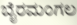
ಬೈರಮಂಗಲ